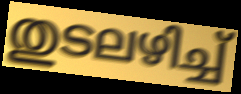
തുടലഴിച്ച്